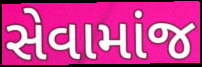
સેવામાંજ